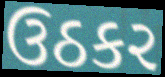
ઉઠકર